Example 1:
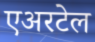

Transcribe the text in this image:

एअरटेल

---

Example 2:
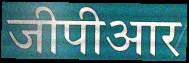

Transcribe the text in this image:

जीपीआर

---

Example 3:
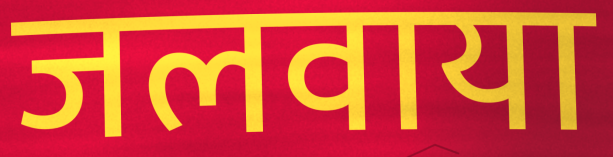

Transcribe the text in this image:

जलवाया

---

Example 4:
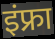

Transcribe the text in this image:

इंफ्रा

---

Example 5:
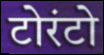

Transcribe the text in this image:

टोरंटो